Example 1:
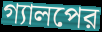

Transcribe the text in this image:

গ্যালপের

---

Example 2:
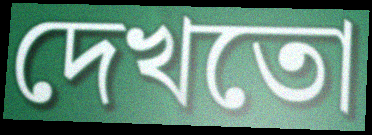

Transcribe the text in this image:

দেখতো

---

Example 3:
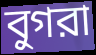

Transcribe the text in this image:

বুগরা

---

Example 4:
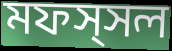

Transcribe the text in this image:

মফস্‌সল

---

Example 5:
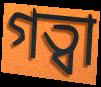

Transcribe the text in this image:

গত্বা